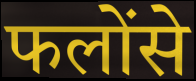
फलोंसे